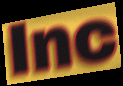
Inc